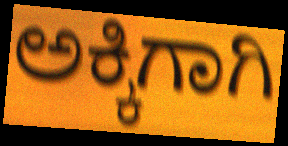
ಅಕ್ಕಿಗಾಗಿ